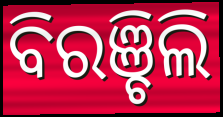
ବିରଞ୍ଚିଲି